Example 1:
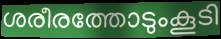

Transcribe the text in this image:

ശരീരത്തോടുംകൂടി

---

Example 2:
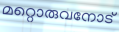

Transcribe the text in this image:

മറ്റൊരുവനോട്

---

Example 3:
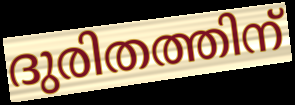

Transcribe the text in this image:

ദുരിതത്തിന്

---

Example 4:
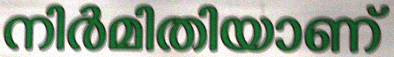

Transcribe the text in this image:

നിർമിതിയാണ്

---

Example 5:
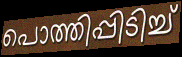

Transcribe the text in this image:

പൊത്തിപ്പിടിച്ച്